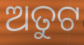
ଅତୁଟ